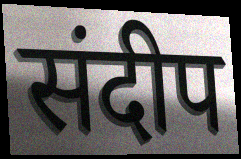
संदीप